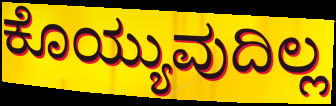
ಕೊಯ್ಯುವುದಿಲ್ಲ